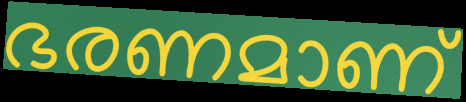
ഭരണമാണ്